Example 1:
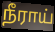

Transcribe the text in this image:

நீராய்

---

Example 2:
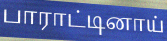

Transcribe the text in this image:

பாராட்டினாய்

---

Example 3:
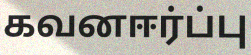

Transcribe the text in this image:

கவனஈர்ப்பு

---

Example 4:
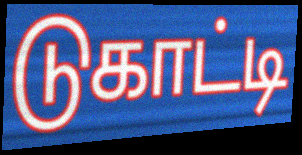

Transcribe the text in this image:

டுகாட்டி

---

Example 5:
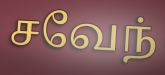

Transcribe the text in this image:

சவேந்